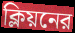
ক্লিয়নের